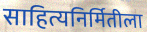
साहित्यनिर्मितीला